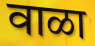
वाळा